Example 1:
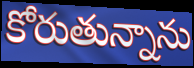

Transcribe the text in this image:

కోరుతున్నాను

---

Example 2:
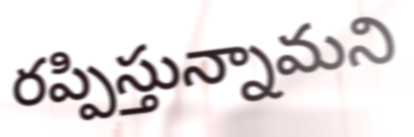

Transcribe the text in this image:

రప్పిస్తున్నామని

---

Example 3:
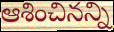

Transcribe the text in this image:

ఆశించినన్ని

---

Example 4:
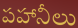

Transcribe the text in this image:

పహానీలు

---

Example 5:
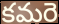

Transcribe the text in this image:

కమరె